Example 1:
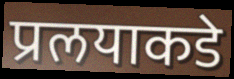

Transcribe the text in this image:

प्रलयाकडे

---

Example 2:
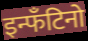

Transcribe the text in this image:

इन्फँटिनो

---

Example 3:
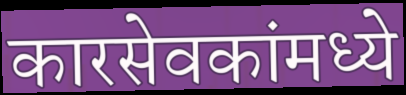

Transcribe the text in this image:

कारसेवकांमध्ये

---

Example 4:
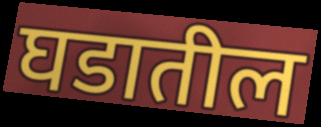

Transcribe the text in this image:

घडातील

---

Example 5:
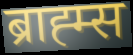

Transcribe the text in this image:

ब्राह्म्स